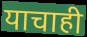
याचाही